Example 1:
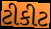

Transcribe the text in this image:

ટીકીટ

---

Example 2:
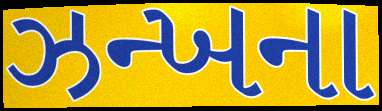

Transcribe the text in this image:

ઝન્ખના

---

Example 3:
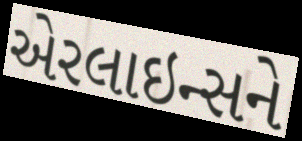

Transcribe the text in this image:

એરલાઇન્સને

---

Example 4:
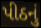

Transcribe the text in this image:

પીઠનું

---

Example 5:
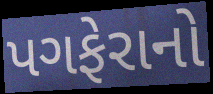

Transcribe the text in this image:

પગફેરાનો